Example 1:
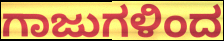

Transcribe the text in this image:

ಗಾಜುಗಳಿಂದ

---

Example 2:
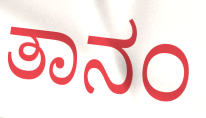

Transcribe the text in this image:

ತಾನಂ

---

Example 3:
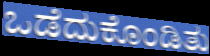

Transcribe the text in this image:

ಒಡೆದುಕೊಂಡಿತು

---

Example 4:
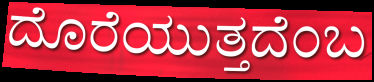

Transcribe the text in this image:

ದೊರೆಯುತ್ತದೆಂಬ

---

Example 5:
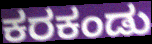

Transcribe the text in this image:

ಕರಕಂಡು